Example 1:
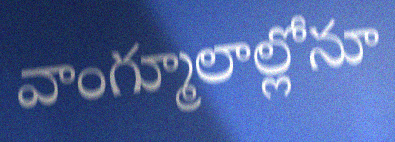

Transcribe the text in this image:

వాంగ్మూలాల్లోనూ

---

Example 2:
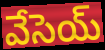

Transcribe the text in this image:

వేసెయ్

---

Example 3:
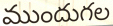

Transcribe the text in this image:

ముందుగల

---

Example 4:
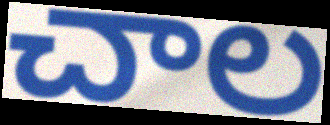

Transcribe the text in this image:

చాల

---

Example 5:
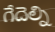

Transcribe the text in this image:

గేదెల్ని